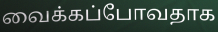
வைக்கப்போவதாக